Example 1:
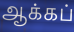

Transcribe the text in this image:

ஆக்கப்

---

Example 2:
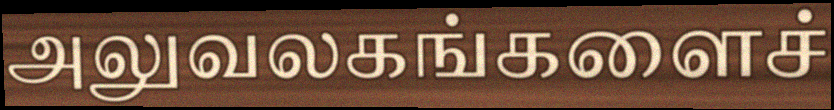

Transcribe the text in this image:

அலுவலகங்களைச்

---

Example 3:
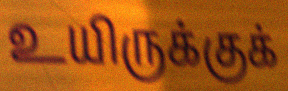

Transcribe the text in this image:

உயிருக்குக்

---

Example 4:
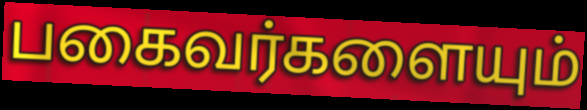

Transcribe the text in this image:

பகைவர்களையும்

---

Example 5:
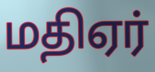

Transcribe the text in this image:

மதிஏர்